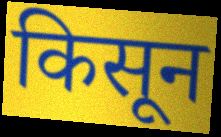
किसून